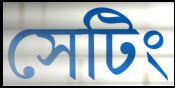
সেটিং